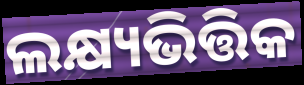
ଲକ୍ଷ୍ୟଭିତ୍ତିକ